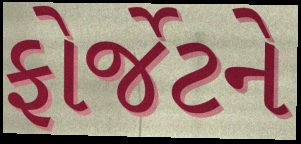
ફોર્જેટને